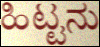
ಹಿಟ್ಟನು